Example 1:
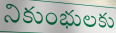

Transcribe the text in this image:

నికుంభులకు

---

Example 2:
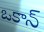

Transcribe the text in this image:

ఒకాన్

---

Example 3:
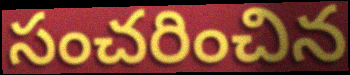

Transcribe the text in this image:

సంచరించిన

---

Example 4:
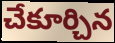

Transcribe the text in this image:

చేకూర్చిన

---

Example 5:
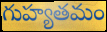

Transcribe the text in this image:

గుహ్యతమం